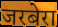
जरबेरा